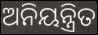
ଅନିୟନ୍ତ୍ରିତ